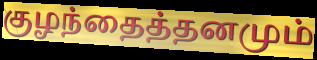
குழந்தைத்தனமும்